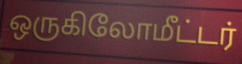
ஒருகிலோமீட்டர்